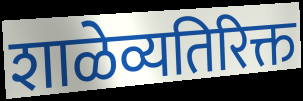
शाळेव्यतिरिक्त